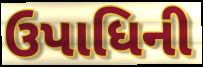
ઉપાધિની